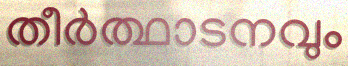
തീർത്ഥാടനവും